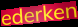
ederken